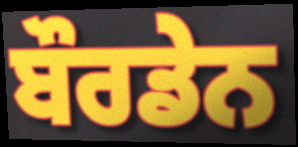
ਬੌਰਡੇਨ